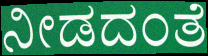
ನೀಡದಂತೆ